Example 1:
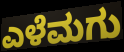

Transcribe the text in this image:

ಎಳೆಮಗು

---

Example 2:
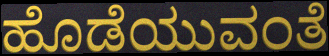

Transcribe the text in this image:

ಹೊಡೆಯುವಂತೆ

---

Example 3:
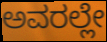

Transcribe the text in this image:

ಅವರಲ್ಲೇ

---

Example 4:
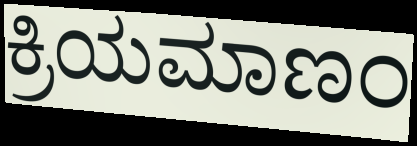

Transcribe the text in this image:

ಕ್ರಿಯಮಾಣಂ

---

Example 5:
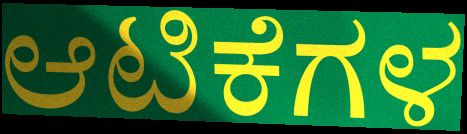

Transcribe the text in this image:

ಆಟಿಕೆಗಳ